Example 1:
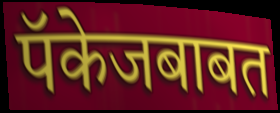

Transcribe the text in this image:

पॅकेजबाबत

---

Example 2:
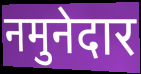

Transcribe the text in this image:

नमुनेदार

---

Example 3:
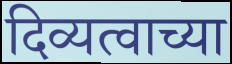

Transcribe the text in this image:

दिव्यत्वाच्या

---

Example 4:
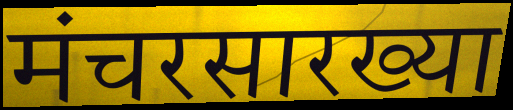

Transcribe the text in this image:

मंचरसारख्या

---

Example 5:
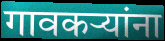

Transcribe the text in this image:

गावकऱ्यांना